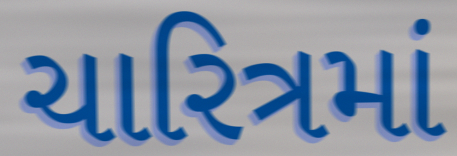
ચારિત્રમાં